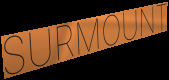
SURMOUNT